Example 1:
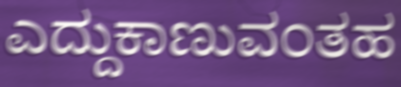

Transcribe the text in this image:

ಎದ್ದುಕಾಣುವಂತಹ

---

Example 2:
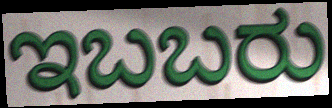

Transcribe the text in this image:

ಇಬಬರು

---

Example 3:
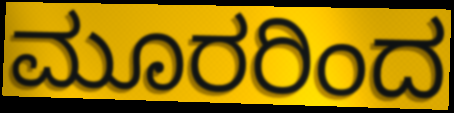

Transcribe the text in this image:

ಮೂರರಿಂದ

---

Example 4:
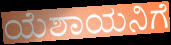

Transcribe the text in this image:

ಯೆಶಾಯನಿಗೆ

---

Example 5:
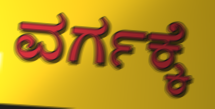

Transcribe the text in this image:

ವರ್ಗಕ್ಕೆ